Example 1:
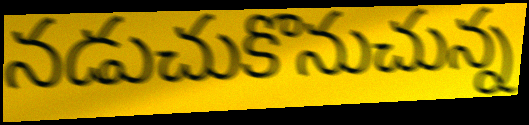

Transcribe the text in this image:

నడుచుకొనుచున్న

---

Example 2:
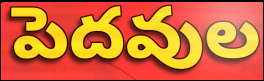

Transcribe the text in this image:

పెదవుల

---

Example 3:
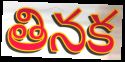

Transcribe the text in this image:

తినక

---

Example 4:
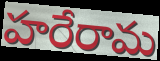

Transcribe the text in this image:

హరేరామ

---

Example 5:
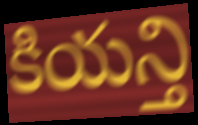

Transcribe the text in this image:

కియన్తి